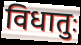
विधातुः